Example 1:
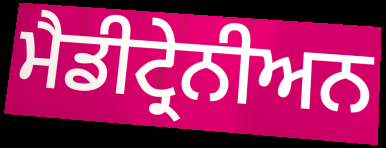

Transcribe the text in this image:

ਮੈਡੀਟ੍ਰੇਨੀਅਨ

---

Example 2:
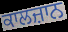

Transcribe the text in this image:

ਕਾਲਜ਼ਾਨ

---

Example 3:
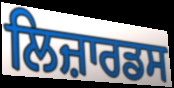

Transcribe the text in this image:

ਲਿਜ਼ਾਰਡਸ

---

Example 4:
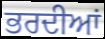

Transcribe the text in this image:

ਭਰਦੀਆਂ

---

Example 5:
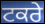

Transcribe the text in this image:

ਟਕਰੇ